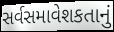
સર્વસમાવેશકતાનું